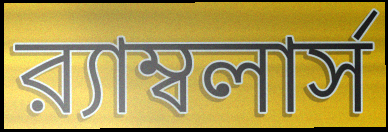
র‍্যাম্বলার্স